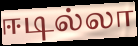
ஈடில்லா